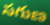
సగుణ